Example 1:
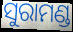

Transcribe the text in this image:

ସୁରାମଣ୍ଡ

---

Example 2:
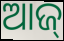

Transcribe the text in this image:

ଆଜ୍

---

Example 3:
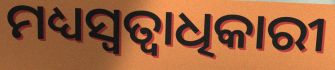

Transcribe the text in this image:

ମଧ୍ୟସ୍ୱତ୍ୱାଧିକାରୀ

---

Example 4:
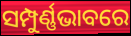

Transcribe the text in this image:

ସମ୍ପୁର୍ଣ୍ଣଭାବରେ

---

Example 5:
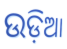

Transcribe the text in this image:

ଉଡ଼ିଆ